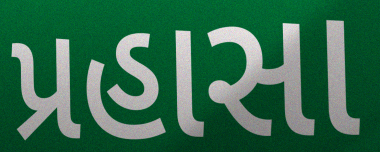
પ્રહાસા